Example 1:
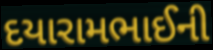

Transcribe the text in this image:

દયારામભાઈની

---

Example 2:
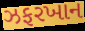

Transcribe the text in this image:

ઝફરખાન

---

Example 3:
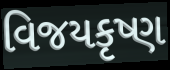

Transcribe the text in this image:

વિજયકૃષ્ણ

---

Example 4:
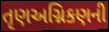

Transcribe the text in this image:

તૃણઅગ્નિકણની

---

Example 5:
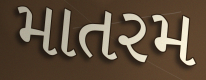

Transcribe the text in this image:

માતરમ